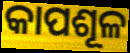
କାପଶୂଳ